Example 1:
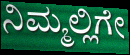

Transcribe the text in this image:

ನಿಮ್ಮಲ್ಲಿಗೇ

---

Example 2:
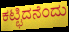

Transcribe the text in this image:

ಕಟ್ಟಿದನೆಂದು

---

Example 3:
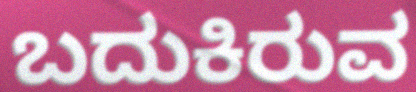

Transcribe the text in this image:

ಬದುಕಿರುವ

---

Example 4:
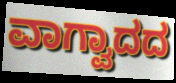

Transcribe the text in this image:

ವಾಗ್ವಾದದ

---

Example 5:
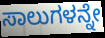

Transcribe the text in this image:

ಸಾಲುಗಳನ್ನೇ